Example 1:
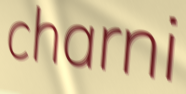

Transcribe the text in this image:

charni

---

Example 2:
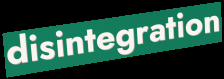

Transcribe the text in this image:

disintegration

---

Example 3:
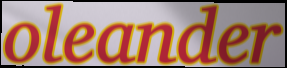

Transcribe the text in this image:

oleander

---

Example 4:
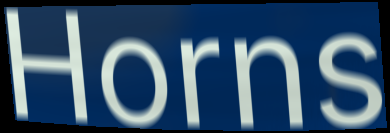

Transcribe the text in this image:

Horns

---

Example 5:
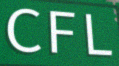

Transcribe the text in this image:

CFL